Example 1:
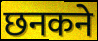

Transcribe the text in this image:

छनकने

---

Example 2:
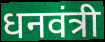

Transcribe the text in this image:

धनवंत्री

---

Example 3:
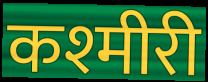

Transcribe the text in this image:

कश्‍मीरी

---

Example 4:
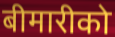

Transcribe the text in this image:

बीमारीको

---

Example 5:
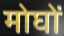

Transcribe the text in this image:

मोघों